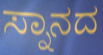
ಸ್ನಾನದ